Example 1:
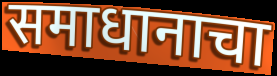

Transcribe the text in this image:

समाधानाचा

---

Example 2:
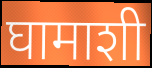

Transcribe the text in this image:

घामाशी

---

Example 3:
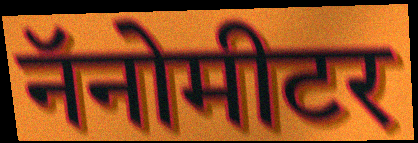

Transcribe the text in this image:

नॅनोमीटर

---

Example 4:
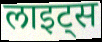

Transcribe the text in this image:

लाइट्स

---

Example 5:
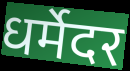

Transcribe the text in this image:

धर्मेदर